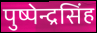
पुष्पेन्द्रसिंह